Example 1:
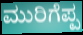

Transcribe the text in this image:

ಮುರಿಗೆಪ್ಪ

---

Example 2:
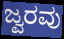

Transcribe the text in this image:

ಜ್ವರವು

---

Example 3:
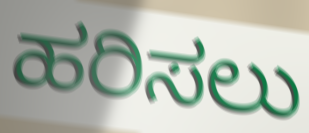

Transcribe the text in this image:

ಹರಿಸಲು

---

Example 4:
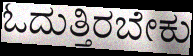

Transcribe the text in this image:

ಓದುತ್ತಿರಬೇಕು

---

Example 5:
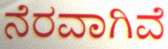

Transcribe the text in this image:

ನೆರವಾಗಿವೆ